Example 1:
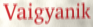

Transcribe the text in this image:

Vaigyanik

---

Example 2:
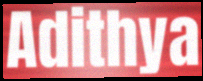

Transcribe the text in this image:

Adithya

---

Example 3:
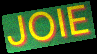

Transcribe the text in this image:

JOIE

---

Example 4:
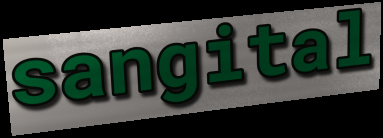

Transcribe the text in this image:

sangital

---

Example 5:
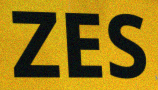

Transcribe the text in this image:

ZES